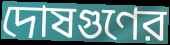
দোষগুণের